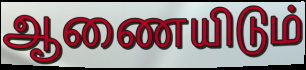
ஆணையிடும்